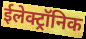
ईलेक्ट्रॉनिक